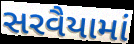
સરવૈયામાં